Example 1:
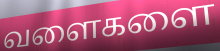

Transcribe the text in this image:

வளைகளை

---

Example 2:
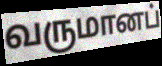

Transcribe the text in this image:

வருமானப்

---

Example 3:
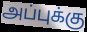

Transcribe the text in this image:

அப்புக்கு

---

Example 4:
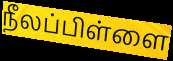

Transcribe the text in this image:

நீலப்பிள்ளை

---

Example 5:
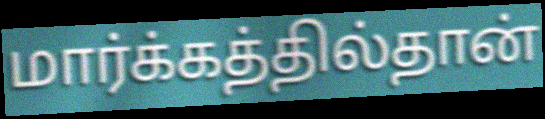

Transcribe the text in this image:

மார்க்கத்தில்தான்